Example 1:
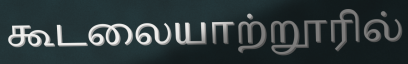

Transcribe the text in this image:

கூடலையாற்றூரில்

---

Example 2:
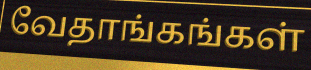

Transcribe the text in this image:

வேதாங்கங்கள்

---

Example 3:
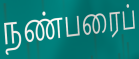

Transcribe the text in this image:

நண்பரைப்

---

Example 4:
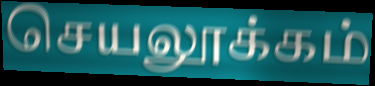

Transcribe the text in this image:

செயலூக்கம்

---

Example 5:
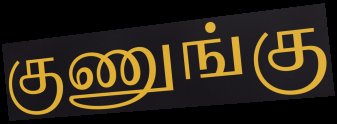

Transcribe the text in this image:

குணுங்கு